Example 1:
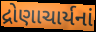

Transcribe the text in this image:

દ્રોણાચાર્યનાં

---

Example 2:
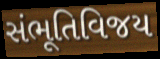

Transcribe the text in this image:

સંભૂતિવિજય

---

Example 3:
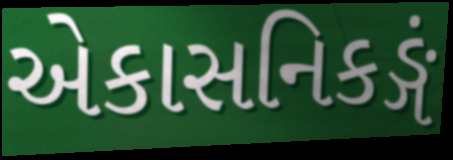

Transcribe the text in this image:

એકાસનિકઙ્ગં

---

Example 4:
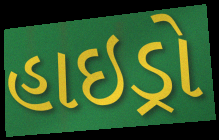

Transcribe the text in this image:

હાઇડ્રો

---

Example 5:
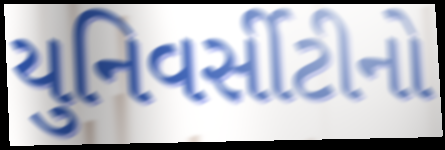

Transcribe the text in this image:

યુનિવર્સીટીનો